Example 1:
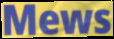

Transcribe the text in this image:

Mews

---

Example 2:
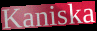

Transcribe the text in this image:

Kaniska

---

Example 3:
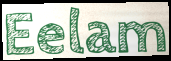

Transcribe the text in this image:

Eelam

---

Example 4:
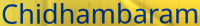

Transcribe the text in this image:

Chidhambaram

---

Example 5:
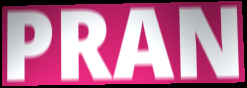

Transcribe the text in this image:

PRAN